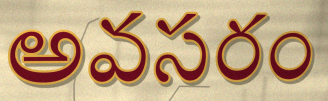
అవసరం